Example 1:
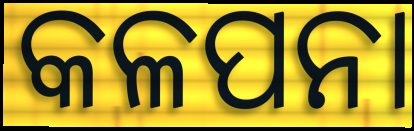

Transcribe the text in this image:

କଳପନା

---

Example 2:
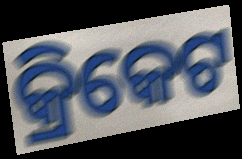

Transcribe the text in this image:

କ୍ରିକେଟ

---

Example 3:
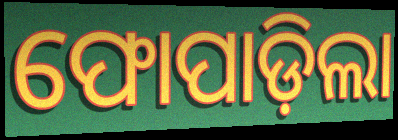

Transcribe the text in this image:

ଫୋପାଡ଼ିଲା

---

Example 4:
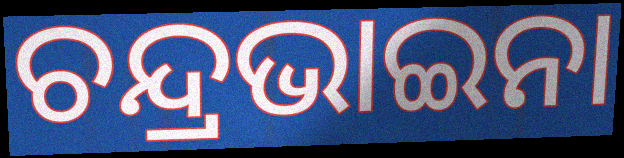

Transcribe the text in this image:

ଚନ୍ଦ୍ରଭାଇନା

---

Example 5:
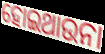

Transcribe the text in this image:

ହୋଇଥାଉନା